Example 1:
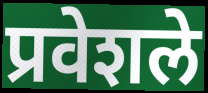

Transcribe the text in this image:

प्रवेशले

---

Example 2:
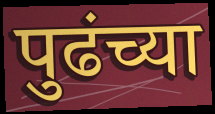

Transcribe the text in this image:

पुढंच्या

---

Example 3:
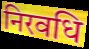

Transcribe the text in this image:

निरवधि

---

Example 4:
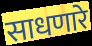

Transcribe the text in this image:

साधणारे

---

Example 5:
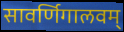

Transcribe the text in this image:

सावर्णिगालवम्